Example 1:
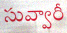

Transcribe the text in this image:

సువ్వారీ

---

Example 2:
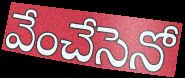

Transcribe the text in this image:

వేంచేసెనో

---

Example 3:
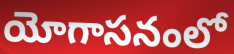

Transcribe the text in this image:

యోగాసనంలో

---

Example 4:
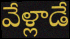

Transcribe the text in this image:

వేళ్లాడే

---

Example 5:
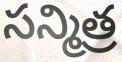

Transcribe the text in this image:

సన్మిత్ర